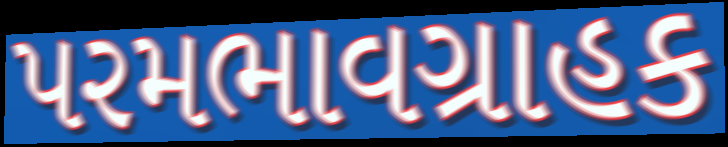
પરમભાવગ્રાહક